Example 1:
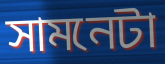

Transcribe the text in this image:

সামনেটা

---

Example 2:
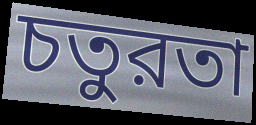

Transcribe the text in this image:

চতুরতা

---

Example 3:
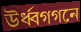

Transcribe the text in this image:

উর্ধ্বগগনে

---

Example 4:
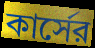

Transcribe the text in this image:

কার্সের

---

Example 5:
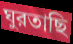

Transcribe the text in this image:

ঘুরতাছি